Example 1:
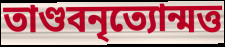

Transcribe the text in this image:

তাণ্ডবনৃত্যোন্মত্ত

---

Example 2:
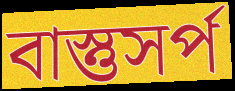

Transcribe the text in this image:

বাস্তুসর্প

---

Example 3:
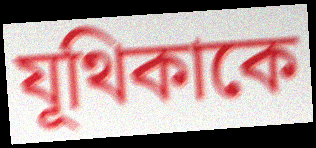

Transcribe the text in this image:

যূথিকাকে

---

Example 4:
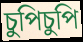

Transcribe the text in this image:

চুপিচুপি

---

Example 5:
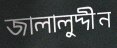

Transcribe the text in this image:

জালালুদ্দীন